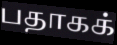
பதாகக்